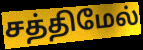
சத்திமேல்